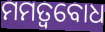
ମମତ୍ବବୋଧ